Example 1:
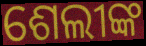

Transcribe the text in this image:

ଶେଲୀଙ୍କ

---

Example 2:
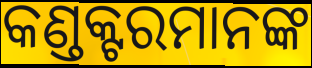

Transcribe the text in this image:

କଣ୍ଡକ୍ଟରମାନଙ୍କ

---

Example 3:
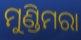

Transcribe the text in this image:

ମୁଣ୍ଡିମରା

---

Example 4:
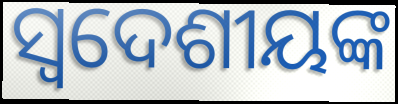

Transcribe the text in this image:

ସ୍ଵଦେଶୀୟଙ୍କ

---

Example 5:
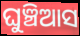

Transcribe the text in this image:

ଘୁଞ୍ଚିଆସ